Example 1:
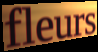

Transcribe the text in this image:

fleurs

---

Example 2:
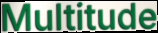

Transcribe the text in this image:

Multitude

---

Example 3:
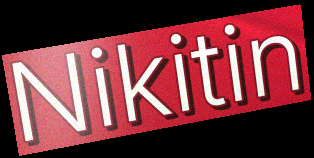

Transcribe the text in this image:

Nikitin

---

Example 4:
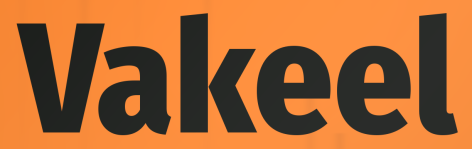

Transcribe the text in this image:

Vakeel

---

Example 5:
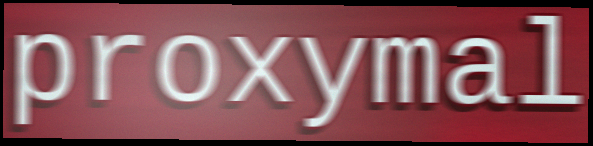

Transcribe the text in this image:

proxymal